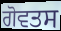
ਗੋਵਤਸ